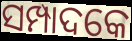
ସମ୍ପାଦକେ